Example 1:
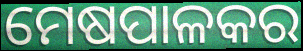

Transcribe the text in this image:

ମେଷପାଳକର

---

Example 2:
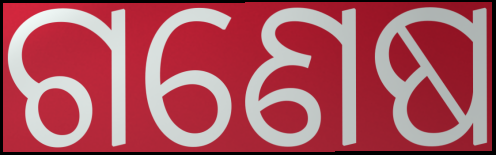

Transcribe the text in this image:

ଗଣେଷ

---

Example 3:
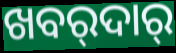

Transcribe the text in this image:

ଖବର୍‍ଦାର୍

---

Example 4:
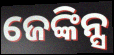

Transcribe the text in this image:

ଜେଙ୍କିନ୍ସ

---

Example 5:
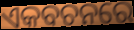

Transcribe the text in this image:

ଏକବଚନରେ